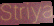
Striya